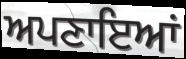
ਅਪਣਾਇਆਂ